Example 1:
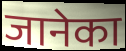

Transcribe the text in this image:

जानेका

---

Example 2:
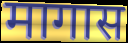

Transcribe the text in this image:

मागास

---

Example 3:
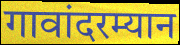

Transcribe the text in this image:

गावांदरम्यान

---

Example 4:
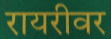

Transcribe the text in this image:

रायरीवर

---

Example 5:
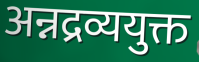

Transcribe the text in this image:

अन्नद्रव्ययुक्त